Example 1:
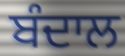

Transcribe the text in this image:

ਬੰਦਾਲ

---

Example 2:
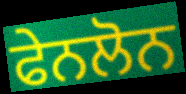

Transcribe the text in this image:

ਫੇਨਲੋਨ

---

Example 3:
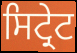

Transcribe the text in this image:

ਸਿਟ੍ਰੇਟ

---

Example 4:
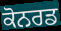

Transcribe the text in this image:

ਕੋਨਰਡ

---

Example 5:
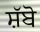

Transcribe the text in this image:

ਸ਼ੱਬੋ